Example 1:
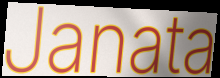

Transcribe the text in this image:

Janata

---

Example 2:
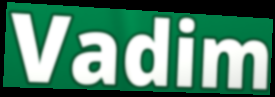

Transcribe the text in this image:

Vadim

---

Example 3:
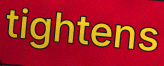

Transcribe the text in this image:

tightens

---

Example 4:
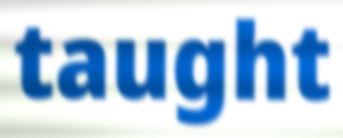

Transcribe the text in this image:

taught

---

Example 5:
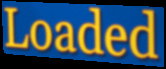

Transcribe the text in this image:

Loaded